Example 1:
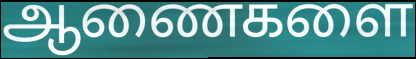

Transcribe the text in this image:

ஆணைகளை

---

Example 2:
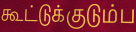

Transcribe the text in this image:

கூட்டுக்குடும்ப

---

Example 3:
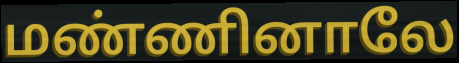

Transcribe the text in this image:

மண்ணினாலே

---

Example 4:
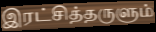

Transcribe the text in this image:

இரட்சித்தருளும்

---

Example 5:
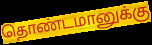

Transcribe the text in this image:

தொண்டமானுக்கு